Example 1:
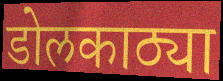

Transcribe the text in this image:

डोलकाठ्या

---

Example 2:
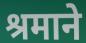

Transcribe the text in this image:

श्रमाने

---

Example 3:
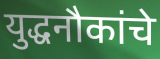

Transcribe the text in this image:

युद्धनौकांचे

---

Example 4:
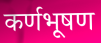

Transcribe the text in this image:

कर्णभूषण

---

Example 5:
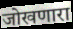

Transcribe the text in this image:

जोखणारा